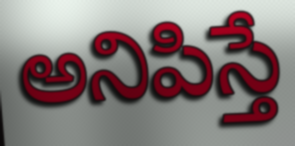
అనిపిస్తే